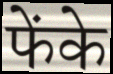
फेंके